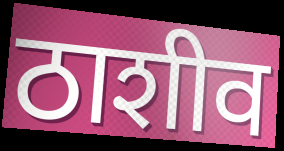
ठाशीव